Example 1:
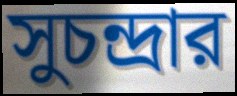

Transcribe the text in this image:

সুচন্দ্রার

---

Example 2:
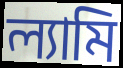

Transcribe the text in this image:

ল্যামি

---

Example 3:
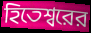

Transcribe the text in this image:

হিতেশ্বরের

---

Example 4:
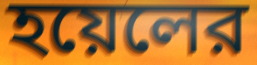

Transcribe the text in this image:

হয়েলের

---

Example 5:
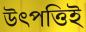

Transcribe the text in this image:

উৎপত্তিই